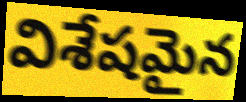
విశేషమైన